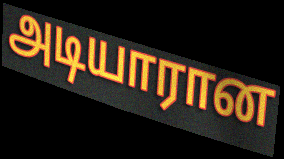
அடியாரான